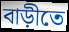
বাড়ীতে